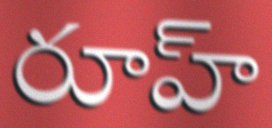
రూహ్